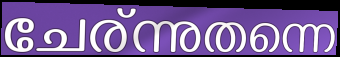
ചേര്ന്നുതന്നെ